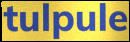
tulpule